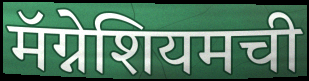
मॅग्नेशियमची